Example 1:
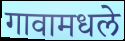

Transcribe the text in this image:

गावामधले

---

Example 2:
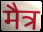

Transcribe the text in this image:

मैत्र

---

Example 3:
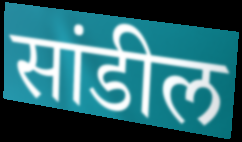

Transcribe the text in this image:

सांडील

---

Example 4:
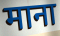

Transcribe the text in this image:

माना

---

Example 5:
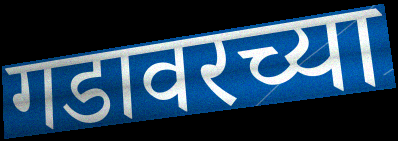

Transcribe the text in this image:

गडावरच्या